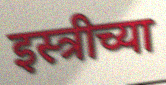
इस्त्रीच्या